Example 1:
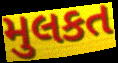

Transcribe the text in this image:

મુલકત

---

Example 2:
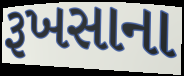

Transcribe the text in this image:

રૂખસાના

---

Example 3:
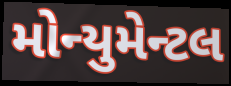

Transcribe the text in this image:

મોન્યુમેન્ટલ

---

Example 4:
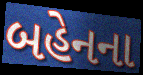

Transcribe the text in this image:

બહેનના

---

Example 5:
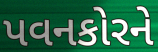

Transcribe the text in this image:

પવનકોરને